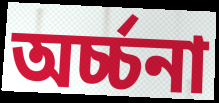
অর্চ্চনা